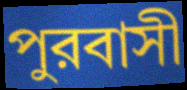
পুরবাসী